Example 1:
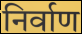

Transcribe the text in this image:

निर्वाण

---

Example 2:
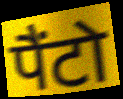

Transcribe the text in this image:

पैंटो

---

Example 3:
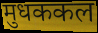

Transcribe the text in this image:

मुधककल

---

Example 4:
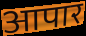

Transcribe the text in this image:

आपार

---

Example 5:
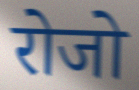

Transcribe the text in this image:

रोजो